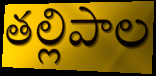
తల్లిపాల